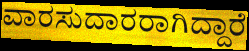
ವಾರಸುದಾರರಾಗಿದ್ದಾರೆ